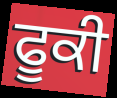
ਫੂਕੀ